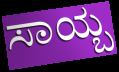
ಸಾಯ್ಬ